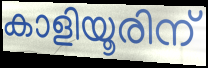
കാളിയൂരിന്